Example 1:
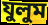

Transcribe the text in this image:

যুলুম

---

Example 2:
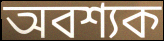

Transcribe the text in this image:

অবশ্যক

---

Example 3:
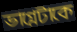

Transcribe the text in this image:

ভাগ্নেটাকে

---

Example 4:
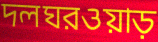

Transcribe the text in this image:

দলঘরওয়াড়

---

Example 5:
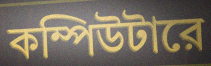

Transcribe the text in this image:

কম্পিউটারে